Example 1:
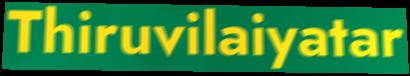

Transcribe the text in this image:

Thiruvilaiyatar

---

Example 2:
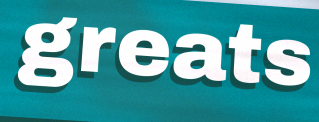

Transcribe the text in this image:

greats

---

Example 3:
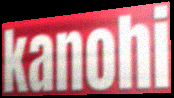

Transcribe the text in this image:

kanohi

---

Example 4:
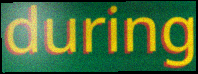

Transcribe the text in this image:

during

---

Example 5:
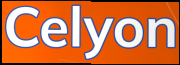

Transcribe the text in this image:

Celyon